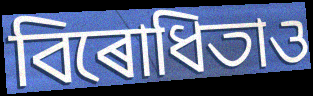
বিৰোধিতাও